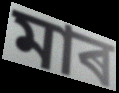
মাৰ